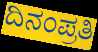
ದಿನಂಪ್ರತಿ